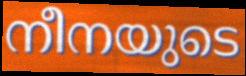
നീനയുടെ